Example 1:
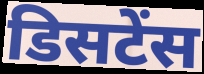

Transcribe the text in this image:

डिसटेंस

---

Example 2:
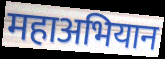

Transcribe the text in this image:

महाअभियान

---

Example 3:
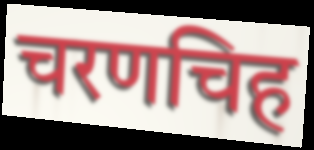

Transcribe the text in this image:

चरणचिह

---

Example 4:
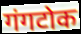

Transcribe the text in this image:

गंगटोक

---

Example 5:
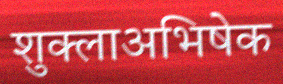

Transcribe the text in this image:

शुक्लाअभिषेक